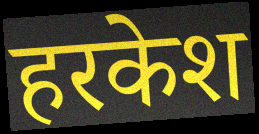
हरकेश